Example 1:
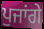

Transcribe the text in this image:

ਪੁਜਾਂਗੇ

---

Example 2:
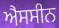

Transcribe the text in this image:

ਐਸਸੀਨ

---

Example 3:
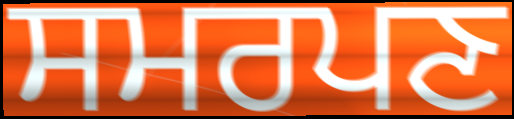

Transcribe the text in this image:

ਸਮਰਪਣ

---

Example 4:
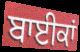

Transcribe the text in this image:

ਬਾਈਕਾਂ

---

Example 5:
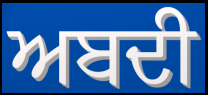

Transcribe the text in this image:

ਅਬਦੀ